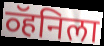
व्हॅनिला